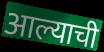
आल्याची